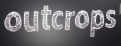
outcrops